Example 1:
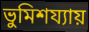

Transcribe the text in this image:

ভুমিশয্যায়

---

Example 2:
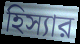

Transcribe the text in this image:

হিস্যার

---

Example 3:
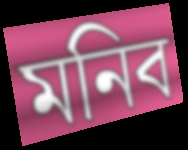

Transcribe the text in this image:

মনিব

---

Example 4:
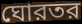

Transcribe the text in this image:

ঘোরতর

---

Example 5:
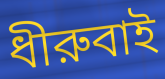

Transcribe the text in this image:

ধীরুবাই